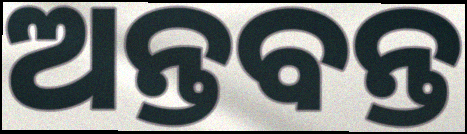
ଅନ୍ତବନ୍ତ